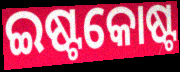
ଇଷ୍ଟକୋଷ୍ଟ